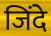
जिंदे